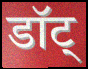
डॉट्